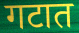
गटात